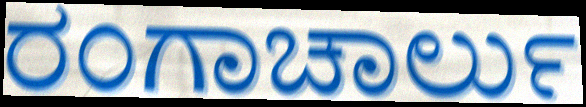
ರಂಗಾಚಾರ್ಲು